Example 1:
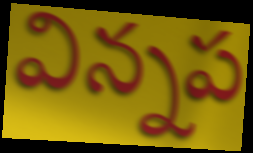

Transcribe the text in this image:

విన్నప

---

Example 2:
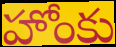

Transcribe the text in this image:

హోంకు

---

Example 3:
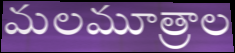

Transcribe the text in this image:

మలమూత్రాల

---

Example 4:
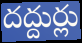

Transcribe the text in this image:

దద్దుర్లు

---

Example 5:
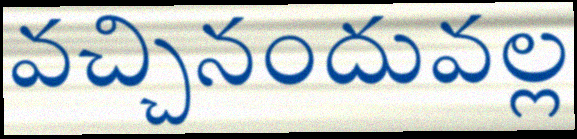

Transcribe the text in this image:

వచ్చినందువల్ల